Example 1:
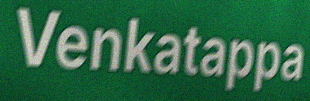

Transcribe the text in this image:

Venkatappa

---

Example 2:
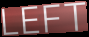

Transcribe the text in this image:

LEFT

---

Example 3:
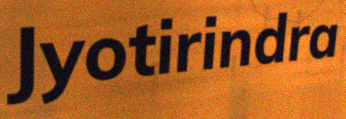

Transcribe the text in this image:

Jyotirindra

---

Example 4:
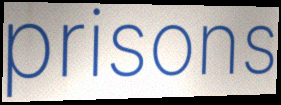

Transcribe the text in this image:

prisons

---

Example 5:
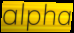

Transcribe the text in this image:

alpha